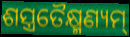
ଶସ୍ତ୍ରତୈକ୍ଷ୍ମଣ୍ୟମ୍